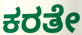
ಕರತೇ